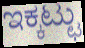
ಇಕ್ಕಟ್ಟು